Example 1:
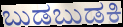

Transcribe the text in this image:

ಬುಡಬುಡಕಿ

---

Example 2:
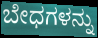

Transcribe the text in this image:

ಬೇಧಗಳನ್ನು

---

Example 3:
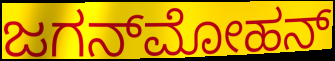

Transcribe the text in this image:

ಜಗನ್‌ಮೋಹನ್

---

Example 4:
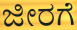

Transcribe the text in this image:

ಜೀರಗೆ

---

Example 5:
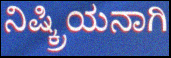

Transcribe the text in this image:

ನಿಷ್ಕ್ರಿಯನಾಗಿ